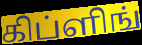
கிப்ளிங்